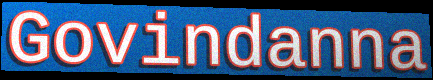
Govindanna